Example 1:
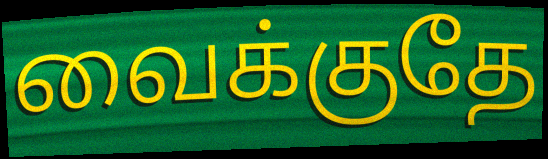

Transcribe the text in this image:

வைக்குதே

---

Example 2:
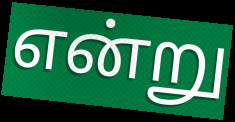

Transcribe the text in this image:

என்று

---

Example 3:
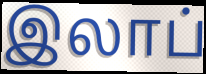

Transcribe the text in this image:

இலாப்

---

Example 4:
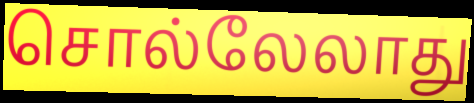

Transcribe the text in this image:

சொல்லேலாது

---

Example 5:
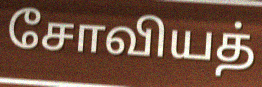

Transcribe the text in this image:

சோவியத்